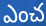
ఎంచ